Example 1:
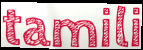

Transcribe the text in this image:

tamili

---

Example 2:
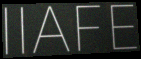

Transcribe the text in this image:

IIAFE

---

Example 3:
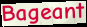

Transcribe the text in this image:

Bageant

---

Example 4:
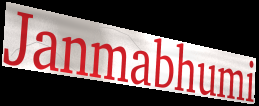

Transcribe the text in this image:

Janmabhumi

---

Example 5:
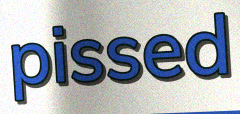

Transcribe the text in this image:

pissed